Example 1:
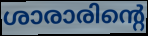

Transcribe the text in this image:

ശാരാരിന്റെ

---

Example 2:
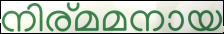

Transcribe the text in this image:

നിര്മമനായ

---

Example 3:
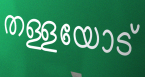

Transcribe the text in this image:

തള്ളയോട്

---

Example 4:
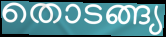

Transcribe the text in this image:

തൊടങ്ങ്യ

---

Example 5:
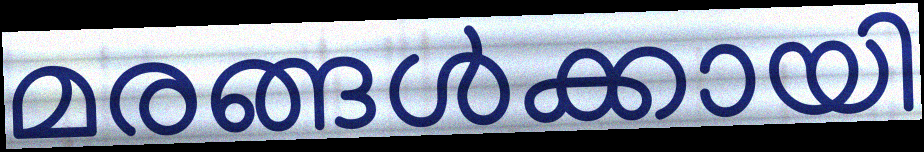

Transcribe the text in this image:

മരങ്ങൾക്കായി